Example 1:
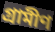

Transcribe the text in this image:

গ্রামীণ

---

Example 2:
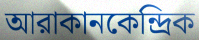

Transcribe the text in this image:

আরাকানকেন্দ্রিক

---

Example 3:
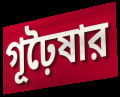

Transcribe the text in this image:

গূঢ়ৈষার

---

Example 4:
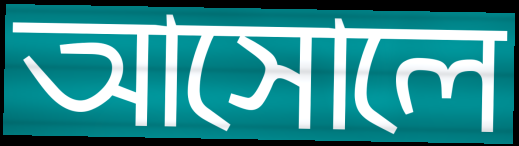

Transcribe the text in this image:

আসোলে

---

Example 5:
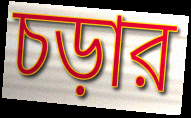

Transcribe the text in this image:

চড়ার